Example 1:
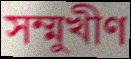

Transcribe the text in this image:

সম্মুখীণ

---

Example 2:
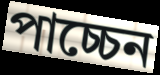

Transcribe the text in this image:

পাচ্চেন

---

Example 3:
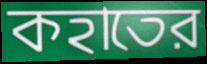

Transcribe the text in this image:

কহাতের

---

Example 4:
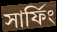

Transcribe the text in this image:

সার্ফিং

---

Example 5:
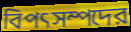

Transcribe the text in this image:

বিপৎসম্পদের